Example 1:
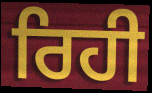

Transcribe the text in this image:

ਰਿਹੀ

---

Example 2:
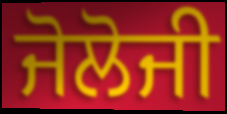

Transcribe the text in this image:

ਜੋਲੋਜੀ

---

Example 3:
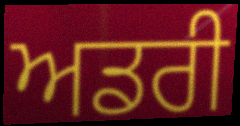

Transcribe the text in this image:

ਅਡਰੀ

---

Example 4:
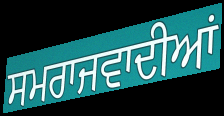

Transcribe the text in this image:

ਸਮਰਾਜਵਾਦੀਆਂ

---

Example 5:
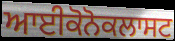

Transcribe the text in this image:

ਆਈਕੋਨੋਕਲਾਸਟ